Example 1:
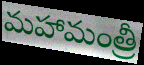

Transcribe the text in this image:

మహామంత్రీ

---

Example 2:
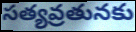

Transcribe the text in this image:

సత్యవ్రతునకు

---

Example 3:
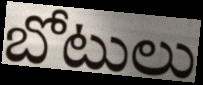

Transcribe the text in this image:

బోటులు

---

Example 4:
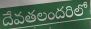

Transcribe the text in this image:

దేవతలందరిలో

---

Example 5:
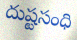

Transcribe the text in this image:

దుష్టసంధి